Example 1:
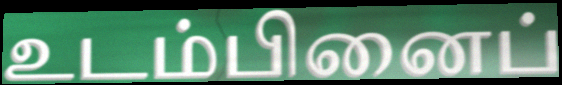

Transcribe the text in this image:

உடம்பினைப்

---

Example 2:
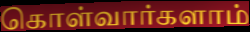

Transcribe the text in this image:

கொள்வார்களாம்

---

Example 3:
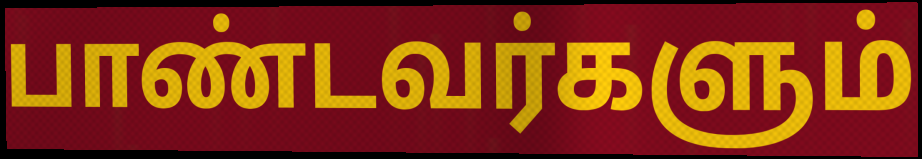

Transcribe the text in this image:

பாண்டவர்களும்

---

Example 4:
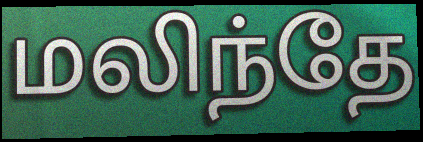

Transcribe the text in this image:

மலிந்தே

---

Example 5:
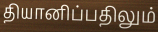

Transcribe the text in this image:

தியானிப்பதிலும்